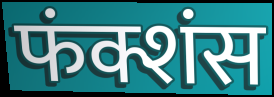
फंक्शंस